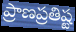
ప్రాణప్రతిష్ట